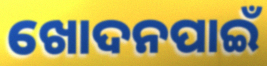
ଖୋଦନପାଇଁ